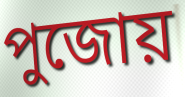
পুজোয়